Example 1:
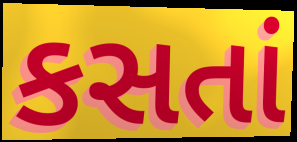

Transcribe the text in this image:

કસતાં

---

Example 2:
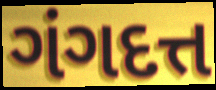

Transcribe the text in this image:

ગંગદત્ત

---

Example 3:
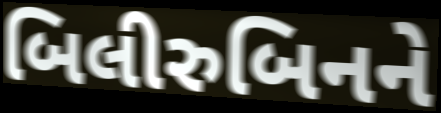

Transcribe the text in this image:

બિલીરુબિનને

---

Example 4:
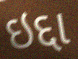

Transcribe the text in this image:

ઇદ્દા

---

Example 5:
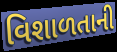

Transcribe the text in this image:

વિશાળતાની